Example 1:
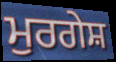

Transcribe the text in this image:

ਮੁਰਗੇਸ਼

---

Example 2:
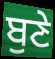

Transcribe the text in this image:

ਬੁਣੇ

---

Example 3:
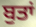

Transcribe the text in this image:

ਬੁਤਾਂ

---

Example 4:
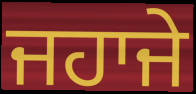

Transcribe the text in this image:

ਜਹਾਜੇ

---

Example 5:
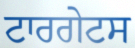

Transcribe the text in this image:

ਟਾਰਗੇਟਸ